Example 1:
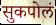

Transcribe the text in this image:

सुकपोलं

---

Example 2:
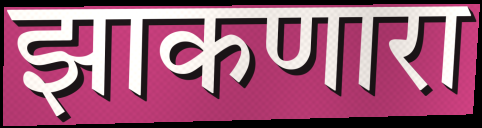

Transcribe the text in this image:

झाकणारा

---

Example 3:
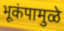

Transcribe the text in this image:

भूकंपामुळे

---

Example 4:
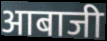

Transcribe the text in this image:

आबाजी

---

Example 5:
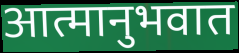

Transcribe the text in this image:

आत्मानुभवात